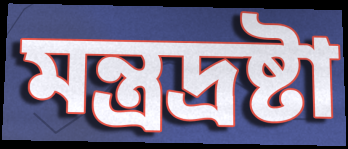
মন্ত্রদ্রষ্টা